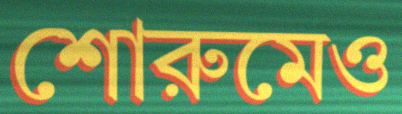
শোরুমেও